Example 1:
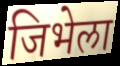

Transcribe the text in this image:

जिभेला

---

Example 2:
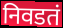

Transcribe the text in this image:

निवडतं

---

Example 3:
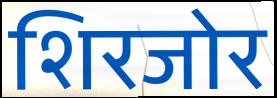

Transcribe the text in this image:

शिरजोर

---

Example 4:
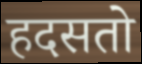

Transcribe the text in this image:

हदसतो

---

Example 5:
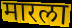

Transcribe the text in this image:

मारला